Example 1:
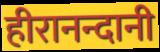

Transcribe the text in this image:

हीरानन्दानी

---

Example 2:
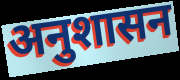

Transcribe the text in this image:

अनुशासन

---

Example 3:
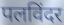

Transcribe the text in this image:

पलविंदर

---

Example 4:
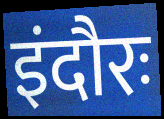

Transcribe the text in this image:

इंदौरः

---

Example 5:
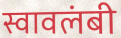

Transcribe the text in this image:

स्वावलंबी